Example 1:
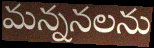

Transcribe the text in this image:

మన్ననలను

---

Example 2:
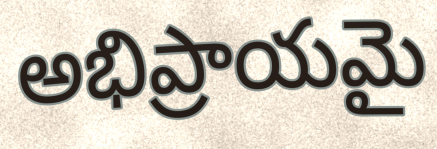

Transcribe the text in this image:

అభిప్రాయమై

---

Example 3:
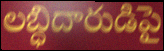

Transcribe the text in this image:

లబ్ధిదారుడిపై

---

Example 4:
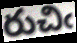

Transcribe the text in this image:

రుచిఁ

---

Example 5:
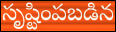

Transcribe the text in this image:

సృష్టింపబడిన